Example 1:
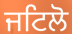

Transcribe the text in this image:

ਜਟਿਲੋ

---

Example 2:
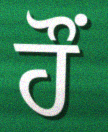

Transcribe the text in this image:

ਹੌਂ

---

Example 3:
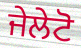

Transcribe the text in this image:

ਜੇਲੇਟੋ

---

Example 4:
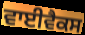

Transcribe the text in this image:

ਵਾਈਵੈਕਸ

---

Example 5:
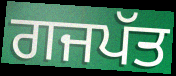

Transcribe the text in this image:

ਗਜਪੱਤ